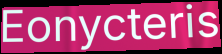
Eonycteris